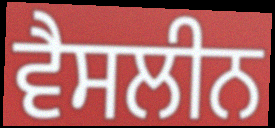
ਵੈਸਲੀਨ